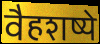
वैहशष्ये